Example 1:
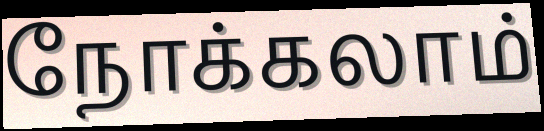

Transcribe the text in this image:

நோக்கலாம்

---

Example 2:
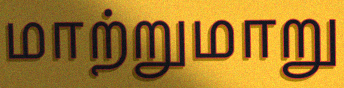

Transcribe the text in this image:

மாற்றுமாறு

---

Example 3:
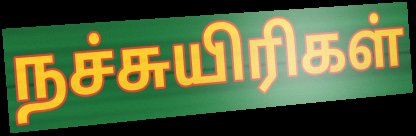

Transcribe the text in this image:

நச்சுயிரிகள்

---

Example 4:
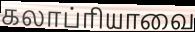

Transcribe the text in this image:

கலாப்ரியாவை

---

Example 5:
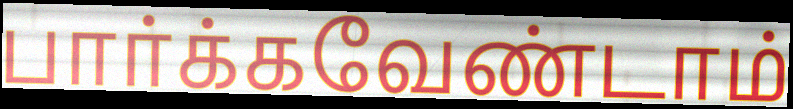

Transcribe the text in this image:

பார்க்கவேண்டாம்